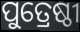
ପୁତ୍ରେଷ୍ଠୀ